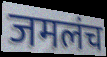
जमलंच